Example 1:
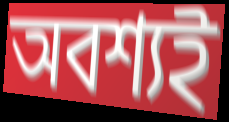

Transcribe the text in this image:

অবশ্যই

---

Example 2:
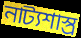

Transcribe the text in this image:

নাট্যশাস্ত্ৰ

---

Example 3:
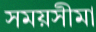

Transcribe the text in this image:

সময়সীমা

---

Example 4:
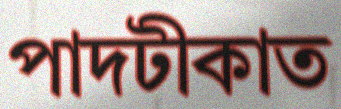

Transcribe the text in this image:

পাদটীকাত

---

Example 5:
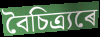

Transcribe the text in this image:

বৈচিত্ৰ্যৰে